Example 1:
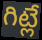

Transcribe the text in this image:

గిట్లే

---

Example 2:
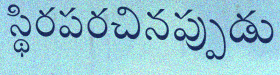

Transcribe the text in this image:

స్థిరపరచినప్పుడు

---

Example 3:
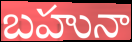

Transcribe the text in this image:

బహునా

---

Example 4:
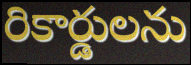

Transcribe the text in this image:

రికార్డులను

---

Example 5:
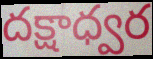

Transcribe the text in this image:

దక్షాధ్వర